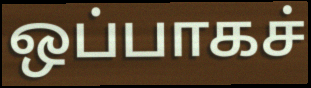
ஒப்பாகச்